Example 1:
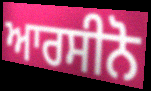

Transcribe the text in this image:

ਆਰਸੀਨੋ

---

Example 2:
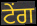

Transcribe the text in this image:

ਟੇਂਗ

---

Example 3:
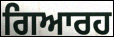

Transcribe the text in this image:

ਗਿਆਰਹ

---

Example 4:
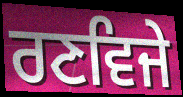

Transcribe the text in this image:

ਰਣਵਿਜੇ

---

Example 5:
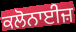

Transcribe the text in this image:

ਕਲੋਨਾਈਜ਼